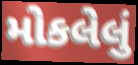
મોકલેલું